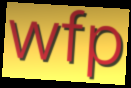
wfp